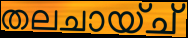
തലചായ്ച്